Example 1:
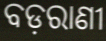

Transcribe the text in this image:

ବଡ଼ରାଣୀ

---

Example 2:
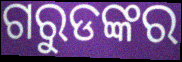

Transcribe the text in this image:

ଗରୁଡଙ୍କର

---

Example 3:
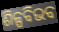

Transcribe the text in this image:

ଶିଳ୍ପବିଭବ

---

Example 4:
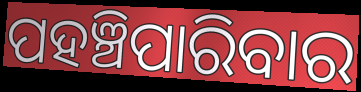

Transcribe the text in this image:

ପହଞ୍ଚିପାରିବାର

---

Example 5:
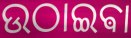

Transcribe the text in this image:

ଉଠାଇଵା